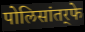
पोलिसांतर्फे